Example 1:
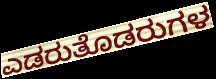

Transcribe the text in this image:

ಎಡರುತೊಡರುಗಳ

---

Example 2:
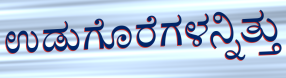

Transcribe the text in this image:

ಉಡುಗೊರೆಗಳನ್ನಿತ್ತು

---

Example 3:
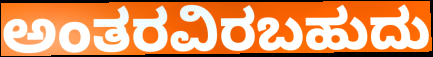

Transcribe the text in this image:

ಅಂತರವಿರಬಹುದು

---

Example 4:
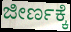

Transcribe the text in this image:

ಜೀರ್ಣಕ್ಕೆ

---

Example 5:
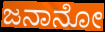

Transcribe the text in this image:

ಜನಾನೋ